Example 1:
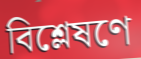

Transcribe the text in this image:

বিশ্লেষণে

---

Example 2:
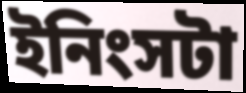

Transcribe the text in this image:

ইনিংসটা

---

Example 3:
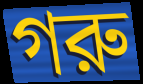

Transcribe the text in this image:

গরু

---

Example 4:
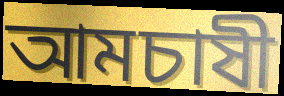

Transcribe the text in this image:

আমচাষী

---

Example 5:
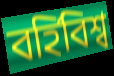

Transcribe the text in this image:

বর্হিবিশ্ব